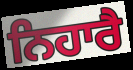
ਨਿਹਾਰੈ